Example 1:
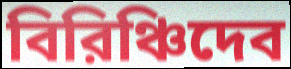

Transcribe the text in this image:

বিরিঞ্চিদেব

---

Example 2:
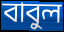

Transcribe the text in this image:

বাবুল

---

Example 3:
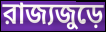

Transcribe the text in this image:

রাজ্যজুড়ে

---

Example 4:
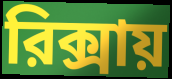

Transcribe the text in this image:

রিক্সায়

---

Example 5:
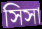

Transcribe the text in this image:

সিসা